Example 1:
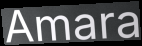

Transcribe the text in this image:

Amara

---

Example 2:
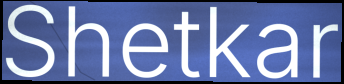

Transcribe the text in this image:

Shetkar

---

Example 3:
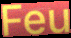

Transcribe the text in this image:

Feu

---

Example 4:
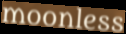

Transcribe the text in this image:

moonless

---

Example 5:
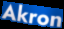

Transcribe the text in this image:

Akron